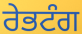
ਰੇਭਟੰਗ